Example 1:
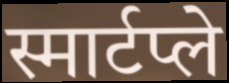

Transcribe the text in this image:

स्मार्टप्ले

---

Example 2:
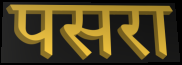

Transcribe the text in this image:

पसरा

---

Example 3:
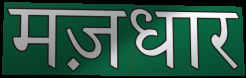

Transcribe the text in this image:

मज़धार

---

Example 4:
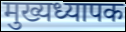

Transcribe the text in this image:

मुख्यध्यापक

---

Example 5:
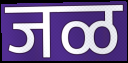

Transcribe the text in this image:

जळ